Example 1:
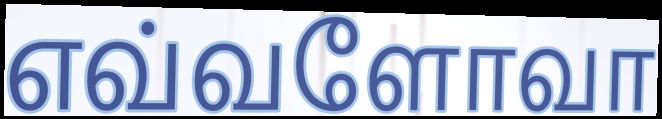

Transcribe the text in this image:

எவ்வளோவா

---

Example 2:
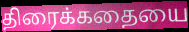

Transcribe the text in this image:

திரைக்கதையை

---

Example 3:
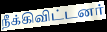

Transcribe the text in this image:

நீக்கிவிட்டனர்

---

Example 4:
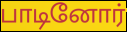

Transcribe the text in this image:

பாடினோர்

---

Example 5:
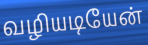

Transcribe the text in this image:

வழியடியேன்